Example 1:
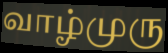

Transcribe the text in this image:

வாழ்முரு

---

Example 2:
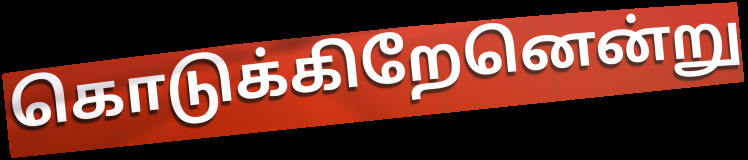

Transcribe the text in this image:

கொடுக்கிறேனென்று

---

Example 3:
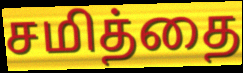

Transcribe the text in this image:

சமித்தை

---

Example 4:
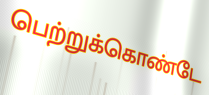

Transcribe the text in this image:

பெற்றுக்கொண்டே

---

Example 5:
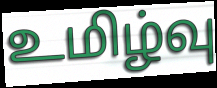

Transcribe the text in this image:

உமிழ்வு